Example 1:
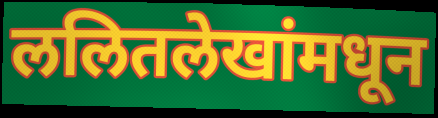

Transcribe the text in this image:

ललितलेखांमधून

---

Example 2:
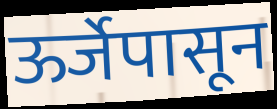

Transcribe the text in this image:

ऊर्जेपासून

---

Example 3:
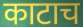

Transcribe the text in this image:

काटाच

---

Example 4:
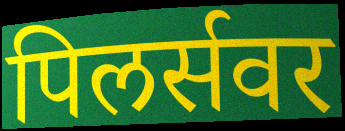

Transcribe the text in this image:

पिलर्सवर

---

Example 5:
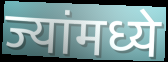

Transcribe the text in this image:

ज्यांमध्ये